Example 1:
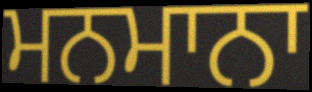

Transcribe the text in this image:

ਮਨਮਾਨਾ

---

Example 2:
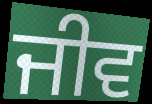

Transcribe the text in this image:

ਜੀਵ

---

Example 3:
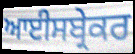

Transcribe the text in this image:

ਆਈਸਬ੍ਰੇਕਰ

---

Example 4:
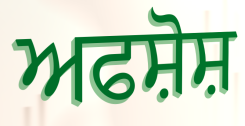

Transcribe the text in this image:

ਅਫਸ਼ੋਸ਼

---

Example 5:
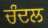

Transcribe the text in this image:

ਚੰਦਲ